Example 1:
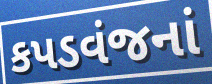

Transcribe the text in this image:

કપડવંજનાં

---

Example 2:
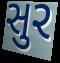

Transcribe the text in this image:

સુર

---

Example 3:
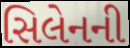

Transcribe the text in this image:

સિલેનની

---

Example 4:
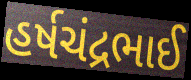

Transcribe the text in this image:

હર્ષચંદ્રભાઈ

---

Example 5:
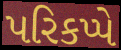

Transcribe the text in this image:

પરિકપ્પે